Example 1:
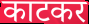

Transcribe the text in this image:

काटकर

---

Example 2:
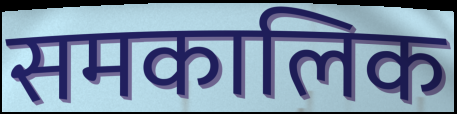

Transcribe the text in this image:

समकालिक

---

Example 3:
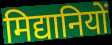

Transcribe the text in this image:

मिद्यानियों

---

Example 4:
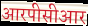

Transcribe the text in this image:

आरपीसीआर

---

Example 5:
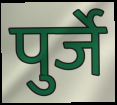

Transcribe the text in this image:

पुर्जे